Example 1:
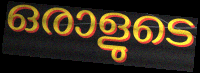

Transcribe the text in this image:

ഒരാളുടെ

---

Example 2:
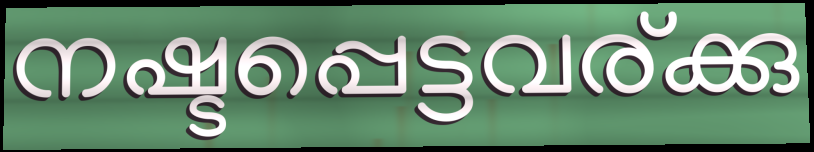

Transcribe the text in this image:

നഷ്ടപ്പെട്ടവര്ക്കു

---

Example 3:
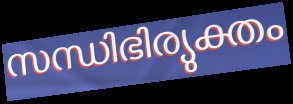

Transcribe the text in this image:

സന്ധിഭിര്യുക്തം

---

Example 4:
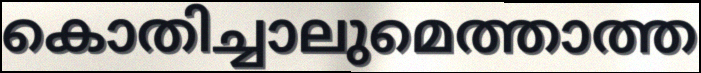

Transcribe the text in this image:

കൊതിച്ചാലുമെത്താത്ത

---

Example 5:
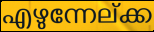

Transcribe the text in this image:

എഴുന്നേല്ക്ക